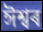
ঈশ্বৰ